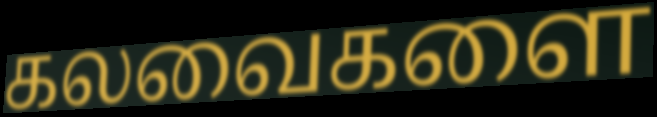
கலவைகளை